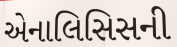
એનાલિસિસની